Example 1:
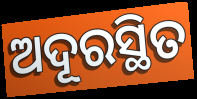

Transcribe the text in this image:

ଅଦୂରସ୍ଥିତ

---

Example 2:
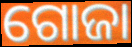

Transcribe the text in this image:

ଗୋଜା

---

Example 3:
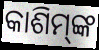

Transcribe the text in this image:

କାଶିମ୍‍ଙ୍କ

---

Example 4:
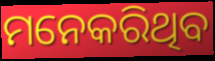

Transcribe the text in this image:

ମନେକରିଥିବ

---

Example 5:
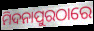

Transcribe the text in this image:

ମିଦନାପୁରଠାରେ